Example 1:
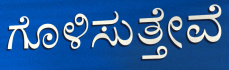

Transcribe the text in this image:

ಗೊಳಿಸುತ್ತೇವೆ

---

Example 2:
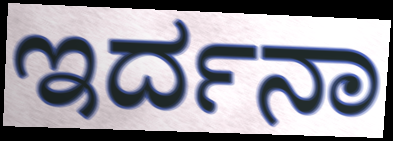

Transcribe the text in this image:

ಇರ್ದನಾ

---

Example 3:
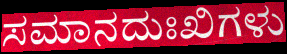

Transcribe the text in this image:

ಸಮಾನದುಃಖಿಗಳು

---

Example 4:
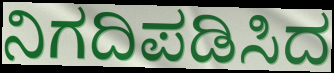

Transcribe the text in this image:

ನಿಗದಿಪಡಿಸಿದ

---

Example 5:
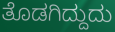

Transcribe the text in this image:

ತೊಡಗಿದ್ದುದು